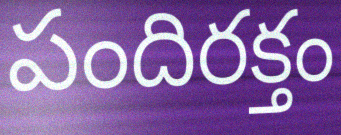
పందిరక్తం